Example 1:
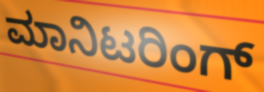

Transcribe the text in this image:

ಮಾನಿಟರಿಂಗ್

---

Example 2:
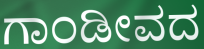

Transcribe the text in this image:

ಗಾಂಡೀವದ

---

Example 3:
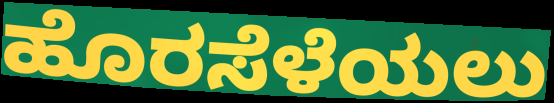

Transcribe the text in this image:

ಹೊರಸೆಳೆಯಲು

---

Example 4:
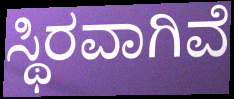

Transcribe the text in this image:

ಸ್ಥಿರವಾಗಿವೆ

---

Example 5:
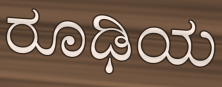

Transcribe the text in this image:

ರೂಢಿಯ